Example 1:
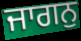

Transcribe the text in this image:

ਜਾਗਨੁ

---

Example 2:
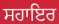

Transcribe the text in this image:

ਸਹਾਇਰ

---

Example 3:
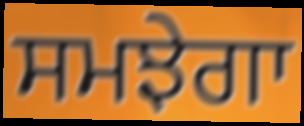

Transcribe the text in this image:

ਸਮਝੇਗਾ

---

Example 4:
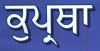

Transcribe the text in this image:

ਕੁਪ੍ਰਥਾ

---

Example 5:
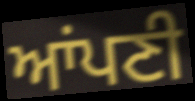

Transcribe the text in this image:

ਆਂਪਣੀ